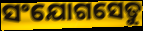
ସଂଯୋଗସେତୁ